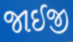
જાઈજી